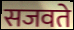
सजवते